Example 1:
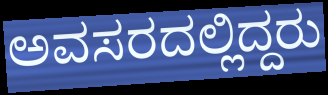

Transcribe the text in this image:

ಅವಸರದಲ್ಲಿದ್ದರು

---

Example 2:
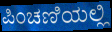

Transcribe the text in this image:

ಪಿಂಚಣಿಯಲ್ಲಿ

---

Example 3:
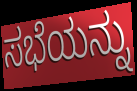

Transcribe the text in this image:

ಸಭೆಯನ್ನು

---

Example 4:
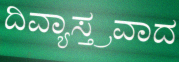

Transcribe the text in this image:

ದಿವ್ಯಾಸ್ತ್ರವಾದ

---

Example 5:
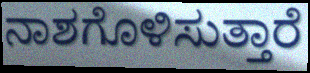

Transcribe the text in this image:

ನಾಶಗೊಳಿಸುತ್ತಾರೆ